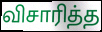
விசாரித்த